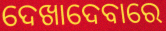
ଦେଖାଦେବାରେ